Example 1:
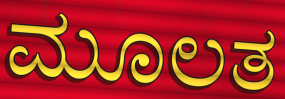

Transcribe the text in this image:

ಮೂಲತ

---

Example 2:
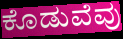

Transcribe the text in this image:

ಕೊಡುವೆವು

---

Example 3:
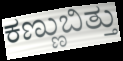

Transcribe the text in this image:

ಕಣ್ಣುಬಿತ್ತು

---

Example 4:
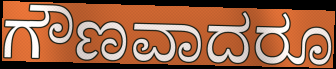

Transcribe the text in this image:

ಗೌಣವಾದರೂ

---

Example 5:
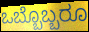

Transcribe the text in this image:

ಒಬ್ಬೊಬ್ಬರೂ